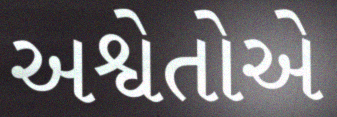
અશ્વેતોએ